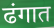
ढंगात